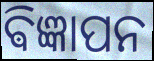
ଵିଜ୍ଞାପନ